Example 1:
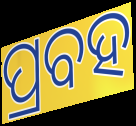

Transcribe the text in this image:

ପ୍ରବହ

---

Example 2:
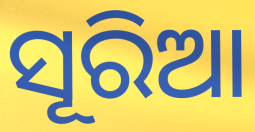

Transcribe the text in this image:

ସୂରିଆ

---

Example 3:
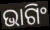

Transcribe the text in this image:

ଭାଗିଂ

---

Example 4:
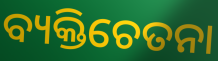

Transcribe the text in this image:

ବ୍ୟକ୍ତିଚେତନା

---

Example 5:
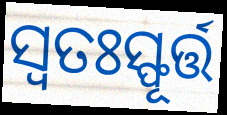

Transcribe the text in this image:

ସ୍ୱତଃସ୍ଫୂର୍ତ୍ତ